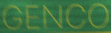
GENCO